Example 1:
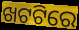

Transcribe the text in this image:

ଖଟଟିରେ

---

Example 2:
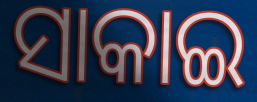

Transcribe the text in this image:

ସାକାଇ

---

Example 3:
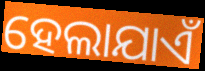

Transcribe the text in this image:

ହେଲାଯାଏଁ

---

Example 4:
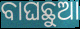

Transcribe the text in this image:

ବାଘଛୁଆ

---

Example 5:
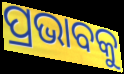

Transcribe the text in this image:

ପ୍ରଭାବକୁ